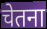
चेतना